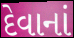
દેવાનાં